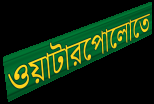
ওয়াটারপোলোতে